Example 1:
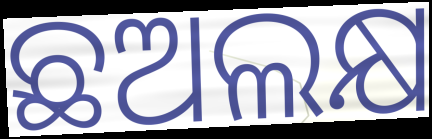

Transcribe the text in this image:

ଛଅଲକ୍ଷ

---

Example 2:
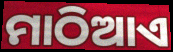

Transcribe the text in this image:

ମାଠିଆଏ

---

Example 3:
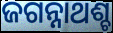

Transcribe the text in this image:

ଜଗନ୍ନାଥଶ୍ଚ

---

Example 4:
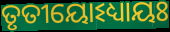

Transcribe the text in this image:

ତୃତୀୟୋଽଧ୍ୟାୟଃ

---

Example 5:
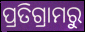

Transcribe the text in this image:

ପ୍ରତିଗ୍ରାମରୁ